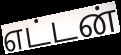
எட்டன்